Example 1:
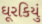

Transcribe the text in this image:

ઘૂરકિયું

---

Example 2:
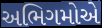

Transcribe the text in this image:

અભિગમોએ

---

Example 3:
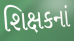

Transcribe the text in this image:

શિક્ષકનાં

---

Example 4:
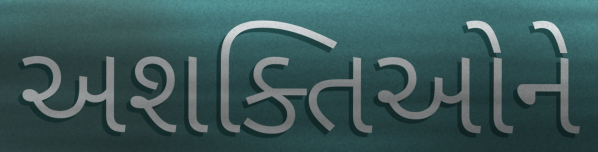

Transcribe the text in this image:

અશક્તિઓને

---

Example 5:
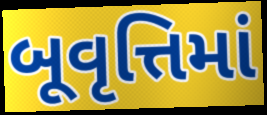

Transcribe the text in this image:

બૂવૃત્તિમાં